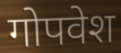
गोपवेश